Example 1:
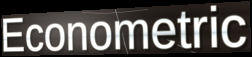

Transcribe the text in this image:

Econometric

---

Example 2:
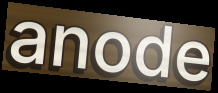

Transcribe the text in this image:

anode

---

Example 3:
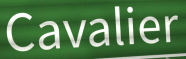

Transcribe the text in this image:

Cavalier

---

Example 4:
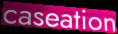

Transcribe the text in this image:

caseation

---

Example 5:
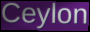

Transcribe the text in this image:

Ceylon